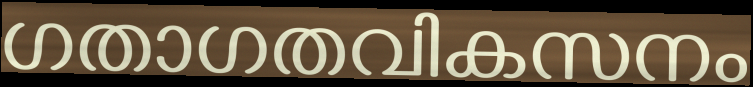
ഗതാഗതവികസനം